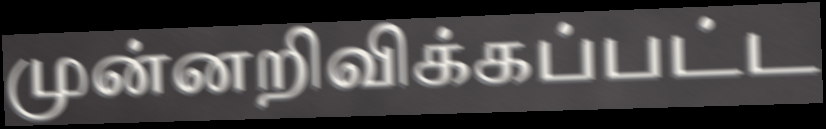
முன்னறிவிக்கப்பட்ட